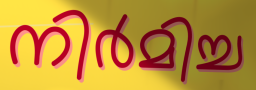
നിർമിച്ച